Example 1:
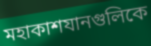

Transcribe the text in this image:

মহাকাশযানগুলিকে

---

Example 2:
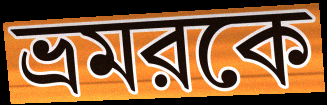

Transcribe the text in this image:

ভ্রমরকে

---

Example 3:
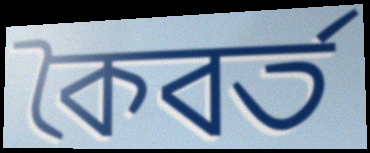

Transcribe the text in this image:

কৈবর্ত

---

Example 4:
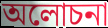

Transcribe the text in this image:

অলোচনা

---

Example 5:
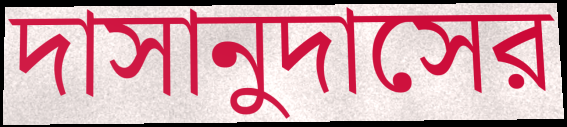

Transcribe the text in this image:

দাসানুদাসের